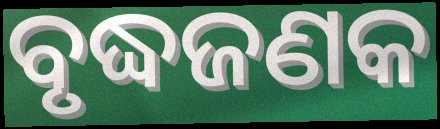
ବୃଦ୍ଧଜଣକ